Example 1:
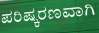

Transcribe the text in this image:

ಪರಿಷ್ಕರಣವಾಗಿ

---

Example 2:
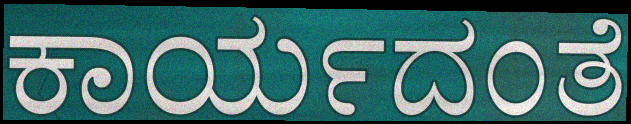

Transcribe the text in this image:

ಕಾರ್ಯದಂತೆ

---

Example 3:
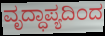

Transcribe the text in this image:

ವೃದ್ಧಾಪ್ಯದಿಂದ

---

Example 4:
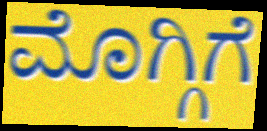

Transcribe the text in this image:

ಮೊಗ್ಗಿಗೆ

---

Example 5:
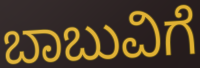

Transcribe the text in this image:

ಬಾಬುವಿಗೆ